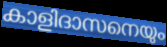
കാളിദാസനെയും